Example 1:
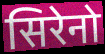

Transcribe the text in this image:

सिरेनो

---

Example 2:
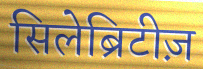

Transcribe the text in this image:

सिलेब्रिटीज़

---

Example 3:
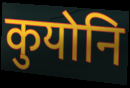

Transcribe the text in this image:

कुयोनि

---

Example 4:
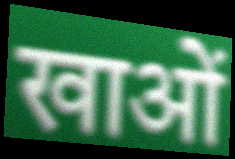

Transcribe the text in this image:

खाओं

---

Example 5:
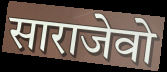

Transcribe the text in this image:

साराजेवो